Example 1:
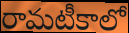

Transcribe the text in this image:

రామటీకాలో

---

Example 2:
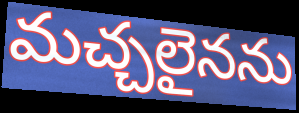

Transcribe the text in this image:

మచ్చలైనను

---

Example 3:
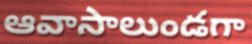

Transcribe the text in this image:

ఆవాసాలుండగా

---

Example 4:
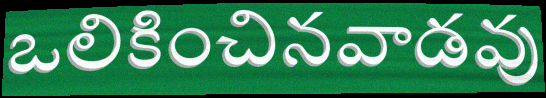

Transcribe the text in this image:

ఒలికించినవాడవు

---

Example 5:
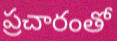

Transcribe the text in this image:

ప్రచారంతో